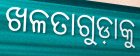
ଖଳତାଗୁଡ଼ାକୁ